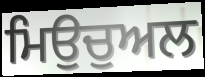
ਮਿਉਚੁਅਲ